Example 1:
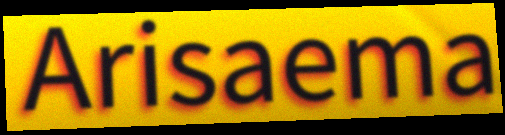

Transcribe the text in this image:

Arisaema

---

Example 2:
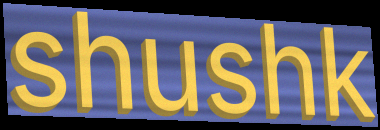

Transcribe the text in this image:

shushk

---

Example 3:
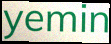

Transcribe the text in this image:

yemin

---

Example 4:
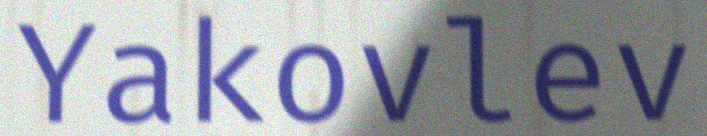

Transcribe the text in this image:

Yakovlev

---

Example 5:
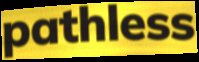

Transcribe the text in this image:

pathless